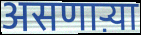
असणाऱ्‍या